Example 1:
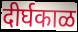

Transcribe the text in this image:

दीर्घकाळ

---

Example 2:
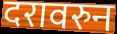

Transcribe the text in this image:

दरावरुन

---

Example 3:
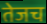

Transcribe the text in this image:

तेजच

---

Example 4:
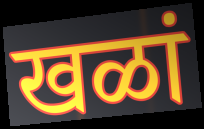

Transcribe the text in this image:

खळां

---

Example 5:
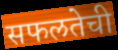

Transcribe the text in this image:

सफलतेची